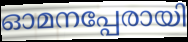
ഓമനപ്പേരായി